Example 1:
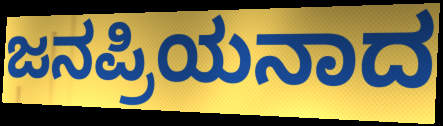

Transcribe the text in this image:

ಜನಪ್ರಿಯನಾದ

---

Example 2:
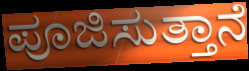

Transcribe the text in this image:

ಪೂಜಿಸುತ್ತಾನೆ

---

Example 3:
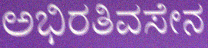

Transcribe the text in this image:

ಅಭಿರತಿವಸೇನ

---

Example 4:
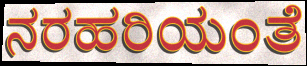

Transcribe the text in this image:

ನರಹರಿಯಂತೆ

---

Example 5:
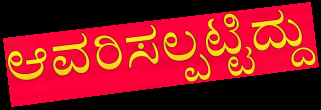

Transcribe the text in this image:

ಆವರಿಸಲ್ಪಟ್ಟಿದ್ದು